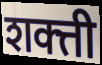
शक्त्ती